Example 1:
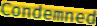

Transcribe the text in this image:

Condemned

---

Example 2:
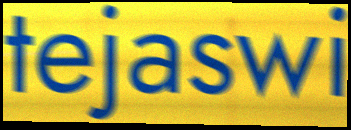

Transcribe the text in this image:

tejaswi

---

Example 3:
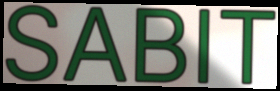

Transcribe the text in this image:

SABIT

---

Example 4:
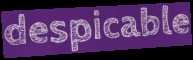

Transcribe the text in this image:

despicable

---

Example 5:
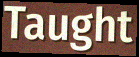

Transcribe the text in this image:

Taught